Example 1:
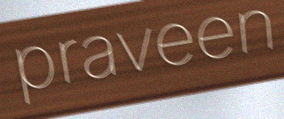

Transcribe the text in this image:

praveen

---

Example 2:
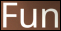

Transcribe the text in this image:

Fun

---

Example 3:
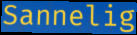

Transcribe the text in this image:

Sannelig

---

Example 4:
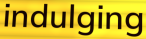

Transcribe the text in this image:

indulging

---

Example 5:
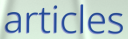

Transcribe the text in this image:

articles